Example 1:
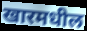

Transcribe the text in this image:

खारमधील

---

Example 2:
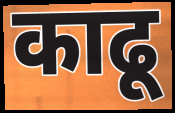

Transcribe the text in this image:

काढू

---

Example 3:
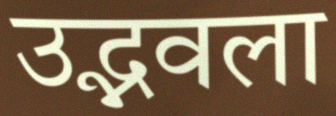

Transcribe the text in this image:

उद्भवला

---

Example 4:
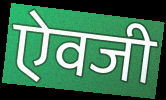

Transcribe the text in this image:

ऐवजी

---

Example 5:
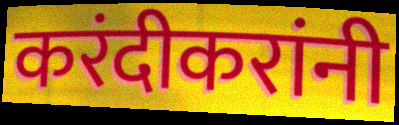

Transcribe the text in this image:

करंदीकरांनी